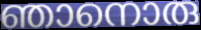
ഞാനൊരു